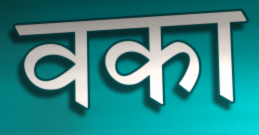
वका